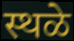
स्थळे